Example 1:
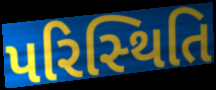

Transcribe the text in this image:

પરિસ્‍થિતિ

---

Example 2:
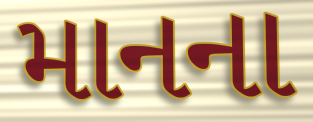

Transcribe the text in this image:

માનના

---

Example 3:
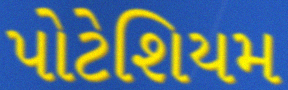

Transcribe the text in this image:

પોટેશિયમ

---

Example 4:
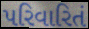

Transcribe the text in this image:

પરિવારિતં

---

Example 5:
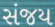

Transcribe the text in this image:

સંજય